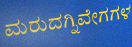
ಮರುದಗ್ನಿವೇಗಗಳ